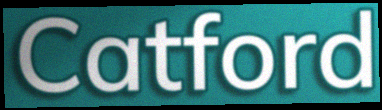
Catford